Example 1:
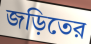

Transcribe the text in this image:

জড়িতের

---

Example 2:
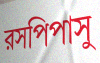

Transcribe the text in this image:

রসপিপাসু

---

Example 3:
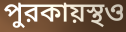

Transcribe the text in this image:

পুরকায়স্থও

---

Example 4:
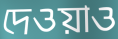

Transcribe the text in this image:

দেওয়াও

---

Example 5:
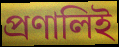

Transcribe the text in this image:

প্রণালিই